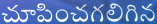
చూపించగలిగిన